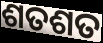
ଶତଶତ